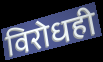
विरोधही